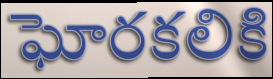
ఘోరకలికి